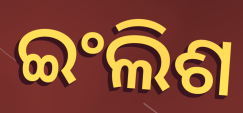
ଇଂଲିଶ